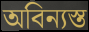
অবিন্যস্ত